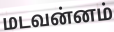
மடவன்னம்